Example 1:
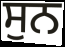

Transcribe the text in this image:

ਸੁਨ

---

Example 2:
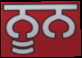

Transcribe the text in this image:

ਨੂਨ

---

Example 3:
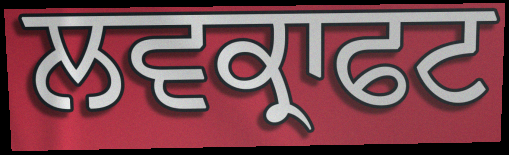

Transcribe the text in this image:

ਲਵਕ੍ਰਾਫਟ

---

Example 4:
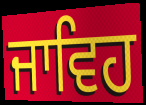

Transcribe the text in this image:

ਜਾਵਿਹ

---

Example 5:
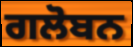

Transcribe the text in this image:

ਗਲੋਬਨ